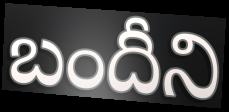
బందీని